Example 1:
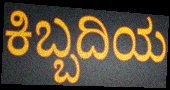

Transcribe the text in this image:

ಕಿಬ್ಬದಿಯ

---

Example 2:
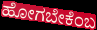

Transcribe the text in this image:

ಹೋಗಬೇಕೆಂಬ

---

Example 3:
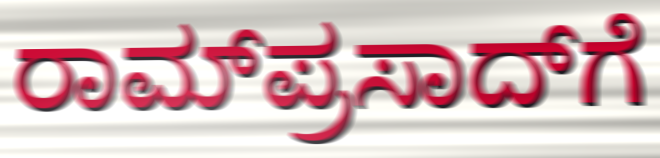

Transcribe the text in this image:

ರಾಮ್‌ಪ್ರಸಾದ್‌ಗೆ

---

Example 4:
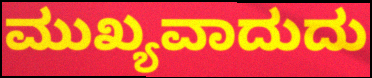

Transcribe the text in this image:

ಮುಖ್ಯವಾದುದು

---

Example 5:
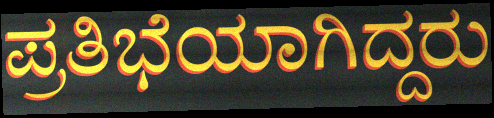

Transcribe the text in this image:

ಪ್ರತಿಭೆಯಾಗಿದ್ದರು